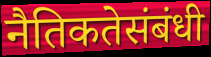
नैतिकतेसंबंधी